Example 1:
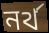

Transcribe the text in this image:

নর্থ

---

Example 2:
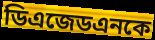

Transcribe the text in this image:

ডিএজেডএনকে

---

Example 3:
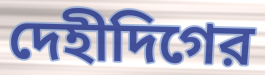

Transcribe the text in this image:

দেহীদিগের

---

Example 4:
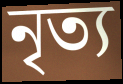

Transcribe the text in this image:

নৃত্য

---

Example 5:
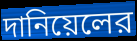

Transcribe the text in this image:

দানিয়েলের